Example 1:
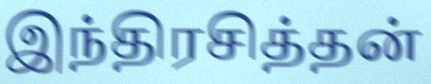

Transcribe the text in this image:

இந்திரசித்தன்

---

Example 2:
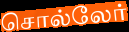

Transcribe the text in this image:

சொல்லேர்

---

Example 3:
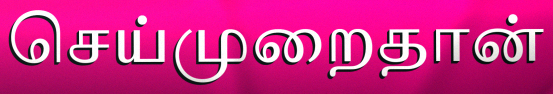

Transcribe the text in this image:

செய்முறைதான்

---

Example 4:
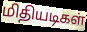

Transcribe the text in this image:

மிதியடிகள்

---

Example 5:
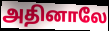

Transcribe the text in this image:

அதினாலே